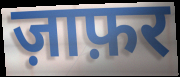
ज़ाफ़र